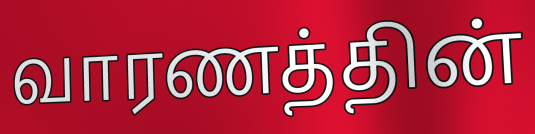
வாரணத்தின்